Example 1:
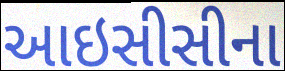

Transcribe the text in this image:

આઇસીસીના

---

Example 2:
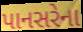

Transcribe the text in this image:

પાનસરેના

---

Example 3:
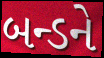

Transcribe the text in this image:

બન્ડને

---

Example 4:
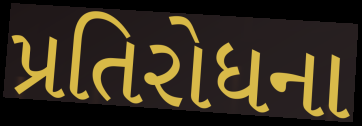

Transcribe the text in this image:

પ્રતિરોધના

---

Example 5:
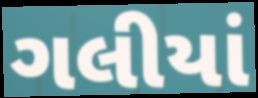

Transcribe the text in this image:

ગલીયાં